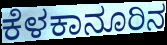
ಕೆಳಕಾನೂರಿನ